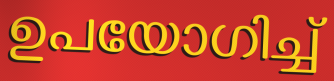
ഉപയോഗിച്ച്